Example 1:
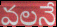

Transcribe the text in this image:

వలనే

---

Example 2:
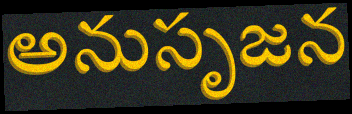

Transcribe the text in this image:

అనుసృజన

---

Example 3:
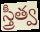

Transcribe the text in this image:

స్త్రీత్వ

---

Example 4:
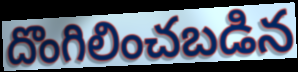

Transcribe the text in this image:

దొంగిలించబడిన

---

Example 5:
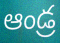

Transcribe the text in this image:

ఆండ్ర